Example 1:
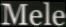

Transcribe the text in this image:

Mele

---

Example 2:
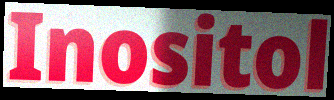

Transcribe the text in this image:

Inositol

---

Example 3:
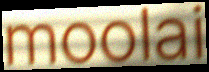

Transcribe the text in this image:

moolai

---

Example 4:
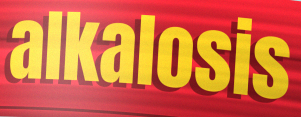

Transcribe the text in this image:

alkalosis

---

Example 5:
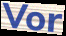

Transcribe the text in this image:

Vor